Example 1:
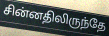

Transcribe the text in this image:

சின்னதிலிருந்தே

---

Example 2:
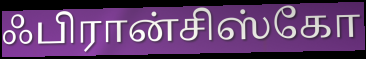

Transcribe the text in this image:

ஃபிரான்சிஸ்கோ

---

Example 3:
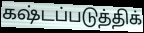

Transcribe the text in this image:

கஷ்டப்படுத்திக்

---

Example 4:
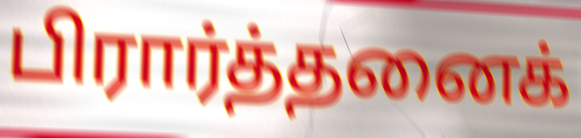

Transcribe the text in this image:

பிரார்த்தனைக்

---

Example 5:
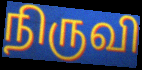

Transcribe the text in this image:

நிருவி